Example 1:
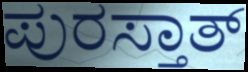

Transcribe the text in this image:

ಪುರಸ್ತಾತ್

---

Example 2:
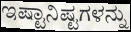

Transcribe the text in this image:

ಇಷ್ಟಾನಿಷ್ಟಗಳನ್ನು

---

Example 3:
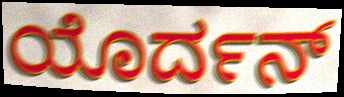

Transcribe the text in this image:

ಯೊರ್ದನ್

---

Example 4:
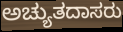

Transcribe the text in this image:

ಅಚ್ಯುತದಾಸರು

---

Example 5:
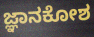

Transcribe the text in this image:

ಜ್ಞಾನಕೋಶ